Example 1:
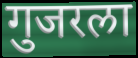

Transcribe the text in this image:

गुजरला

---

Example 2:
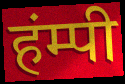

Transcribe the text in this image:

हंम्पी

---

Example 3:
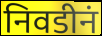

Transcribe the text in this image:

निवडीनं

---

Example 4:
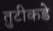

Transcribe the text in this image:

तुटीकडे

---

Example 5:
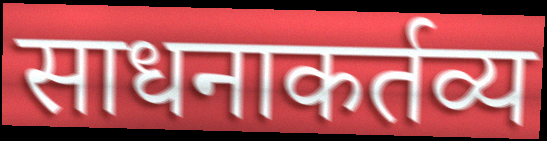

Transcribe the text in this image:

साधनाकर्तव्य